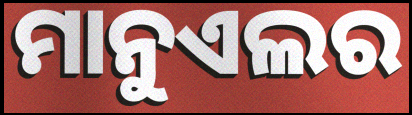
ମାନୁଏଲର